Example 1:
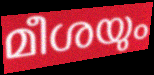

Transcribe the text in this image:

മീശയും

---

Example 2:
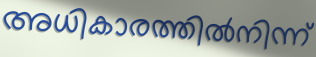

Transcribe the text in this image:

അധികാരത്തിൽനിന്ന്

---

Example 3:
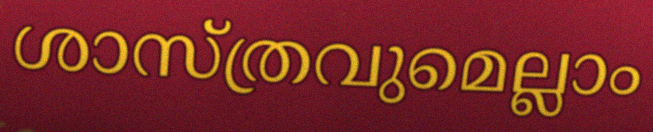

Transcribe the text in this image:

ശാസ്ത്രവുമെല്ലാം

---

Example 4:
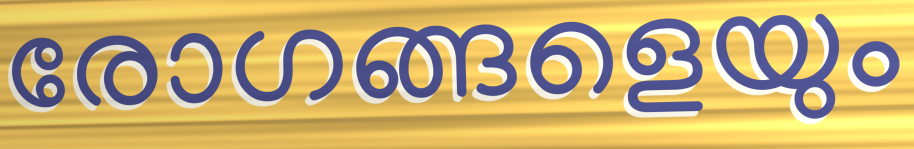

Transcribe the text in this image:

രോഗങ്ങളെയും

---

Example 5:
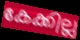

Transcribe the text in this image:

കേക്കില്ല